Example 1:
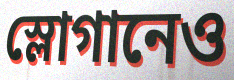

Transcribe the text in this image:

স্লোগানেও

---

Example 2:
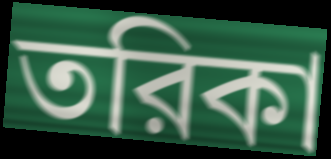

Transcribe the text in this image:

তরিকা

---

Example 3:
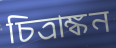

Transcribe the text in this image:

চিত্রাঙ্কন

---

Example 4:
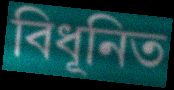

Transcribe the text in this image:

বিধূনিত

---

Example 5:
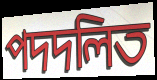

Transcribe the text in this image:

পদদলিত